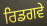
ਰਿਡਗਵੇ